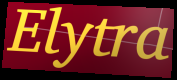
Elytra